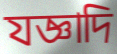
যজ্ঞাদি